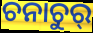
ଚନାଚୁର୍